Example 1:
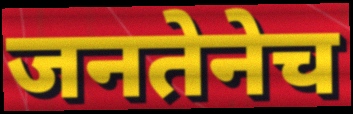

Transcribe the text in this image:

जनतेनेच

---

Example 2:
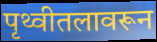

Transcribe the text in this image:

पृथ्वीतलावरून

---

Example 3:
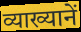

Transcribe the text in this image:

व्याख्यानें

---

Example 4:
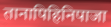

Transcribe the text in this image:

तानापिहिनिपाजा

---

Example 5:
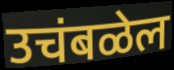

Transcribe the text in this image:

उचंबळेल